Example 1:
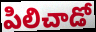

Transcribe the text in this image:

పిలిచాడో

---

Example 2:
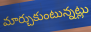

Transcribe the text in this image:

మార్చుకుంటున్నట్లు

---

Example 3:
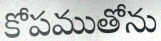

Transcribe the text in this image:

కోపముతోను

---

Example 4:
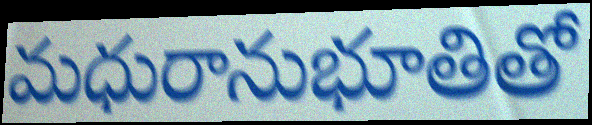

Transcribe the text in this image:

మధురానుభూతితో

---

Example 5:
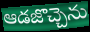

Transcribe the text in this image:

ఆడజొచ్చెను